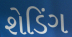
શેડિંગ